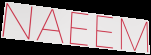
NAEEM